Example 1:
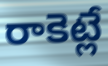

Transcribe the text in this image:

రాకెట్లే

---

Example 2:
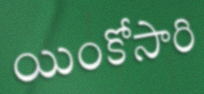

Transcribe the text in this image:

యింకోసారి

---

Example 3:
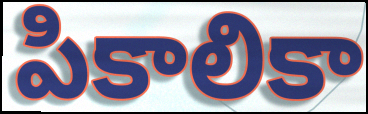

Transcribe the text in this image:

పికాలికా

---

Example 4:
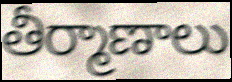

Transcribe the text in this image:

తీర్మాణాలు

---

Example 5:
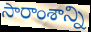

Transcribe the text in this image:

సారాంశాన్ని